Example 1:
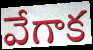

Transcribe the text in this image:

వేగాక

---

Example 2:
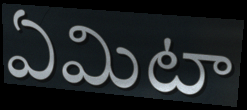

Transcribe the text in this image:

ఏమిటా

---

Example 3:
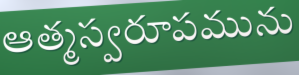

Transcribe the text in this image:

ఆత్మస్వరూపమును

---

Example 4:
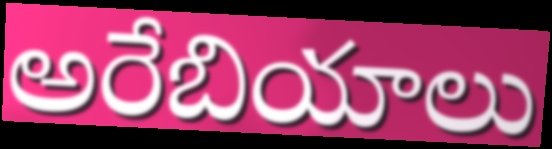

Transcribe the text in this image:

అరేబియాలు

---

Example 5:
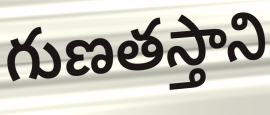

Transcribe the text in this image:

గుణతస్తాని